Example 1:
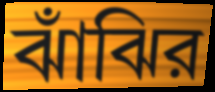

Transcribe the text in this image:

ঝাঁঝির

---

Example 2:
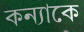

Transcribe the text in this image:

কন্যাকে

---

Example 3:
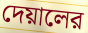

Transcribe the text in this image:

দেয়ালের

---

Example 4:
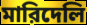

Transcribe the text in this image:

মারিদেলি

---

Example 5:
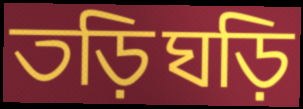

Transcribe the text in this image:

তড়িঘড়ি